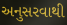
અનુસરવાથી